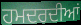
ਹਮਦਰਦੀਆਂ